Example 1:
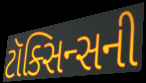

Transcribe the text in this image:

ટૉક્સિન્સની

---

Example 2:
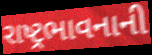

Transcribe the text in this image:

રાષ્ટ્રભાવનાની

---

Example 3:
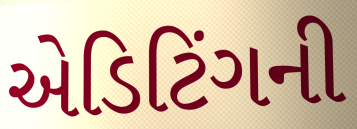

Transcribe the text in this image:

એડિટિંગની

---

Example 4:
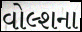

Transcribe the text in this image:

વોલ્શના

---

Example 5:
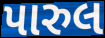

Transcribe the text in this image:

પારુલ